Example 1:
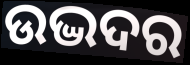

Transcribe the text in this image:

ଉଦ୍ଭଦର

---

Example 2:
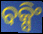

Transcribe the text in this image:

ବକ୍ସିଂ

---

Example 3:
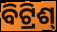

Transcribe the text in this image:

ବିଟ୍ରିଶ୍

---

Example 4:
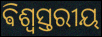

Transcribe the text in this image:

ଵିଶ୍ୱସ୍ତରୀୟ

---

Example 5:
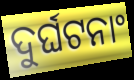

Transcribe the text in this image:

ଦୁର୍ଘଟନାଂ